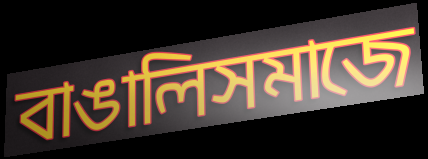
বাঙালিসমাজে